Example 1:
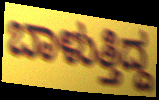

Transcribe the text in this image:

ಬಾಳುತ್ತಿದ್ದ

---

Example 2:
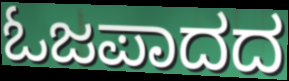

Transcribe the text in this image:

ಓಜಪಾದದ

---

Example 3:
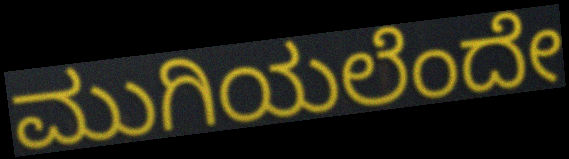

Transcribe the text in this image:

ಮುಗಿಯಲೆಂದೇ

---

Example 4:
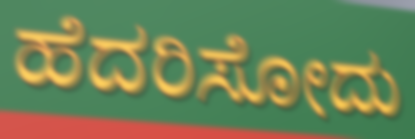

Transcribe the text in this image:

ಹೆದರಿಸೋದು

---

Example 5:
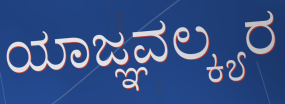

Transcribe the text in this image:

ಯಾಜ್ಞವಲ್ಕ್ಯರ